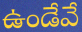
ఉండేవే